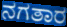
ನಗತಾರ